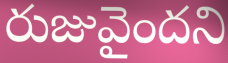
రుజువైందని